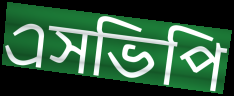
এসভিপি